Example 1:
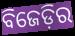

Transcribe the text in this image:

ବିଜେଡ଼ିର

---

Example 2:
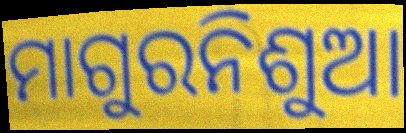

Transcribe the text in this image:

ମାଗୁରନିଶୁଆ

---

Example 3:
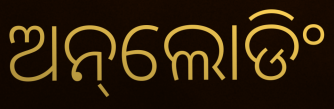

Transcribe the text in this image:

ଅନ୍‌ଲୋଡିଂ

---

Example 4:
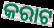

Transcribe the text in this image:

କରାଟ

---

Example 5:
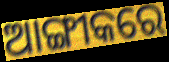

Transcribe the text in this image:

ଆଙ୍ଗୀକରେ